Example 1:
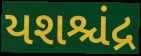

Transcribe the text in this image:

યશશ્ચંદ્ર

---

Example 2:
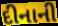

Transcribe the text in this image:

દીનાની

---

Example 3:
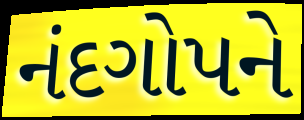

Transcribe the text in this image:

નંદગોપને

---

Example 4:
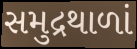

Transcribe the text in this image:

સમુદ્રથાળાં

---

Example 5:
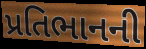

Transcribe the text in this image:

પ્રતિભાનની